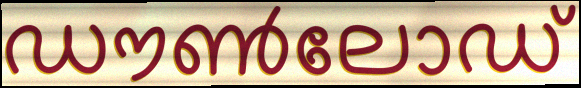
ഡൗൺലോഡ്